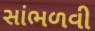
સાંભળવી